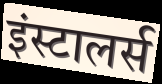
इंस्टालर्स